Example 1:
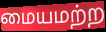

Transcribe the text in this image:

மையமற்ற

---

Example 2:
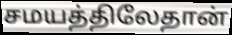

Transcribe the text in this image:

சமயத்திலேதான்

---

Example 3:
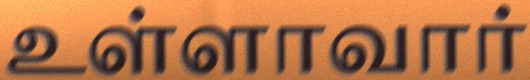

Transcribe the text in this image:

உள்ளாவார்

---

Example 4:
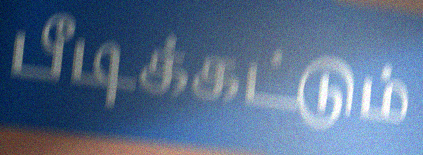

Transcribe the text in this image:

பீடிக்கட்டும்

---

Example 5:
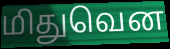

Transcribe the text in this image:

மிதுவென